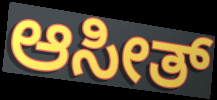
ಆಸೀತ್